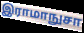
இராமாநுசா